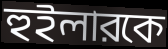
হুইলারকে